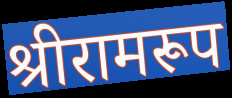
श्रीरामरूप